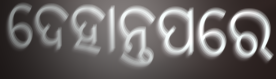
ଦେହାନ୍ତପରେ